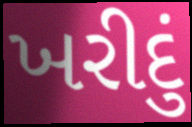
ખરીદું